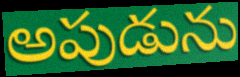
అపుడును